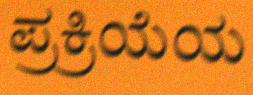
ಪ್ರಕ್ರಿಯೆಯ